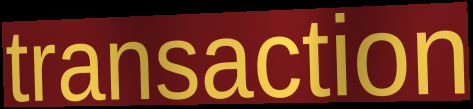
transaction